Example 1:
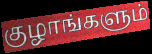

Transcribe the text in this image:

குழாங்களும்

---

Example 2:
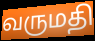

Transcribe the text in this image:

வருமதி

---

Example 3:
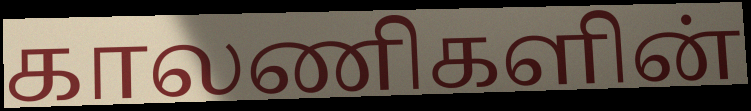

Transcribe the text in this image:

காலணிகளின்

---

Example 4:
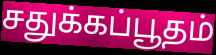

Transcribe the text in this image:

சதுக்கப்பூதம்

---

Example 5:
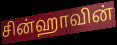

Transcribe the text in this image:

சின்ஹாவின்